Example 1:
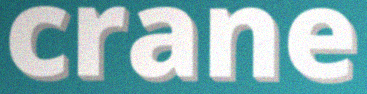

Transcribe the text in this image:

crane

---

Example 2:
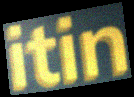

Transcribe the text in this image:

itin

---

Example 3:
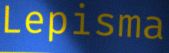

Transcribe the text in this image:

Lepisma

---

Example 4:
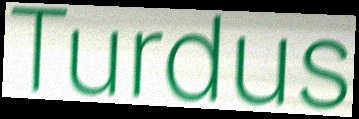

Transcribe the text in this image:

Turdus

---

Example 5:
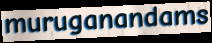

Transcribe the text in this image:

muruganandams